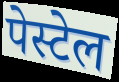
पेस्टेल